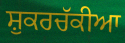
ਸ਼ੁਕਰਚੱਕੀਆ